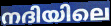
നദിയിലെ